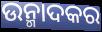
ଉନ୍ମାଦକର